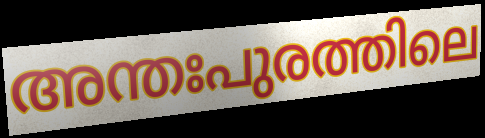
അന്തഃപുരത്തിലെ